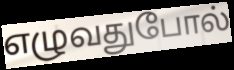
எழுவதுபோல்